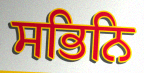
ਸਭਿਨਿ